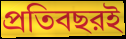
প্রতিবছরই